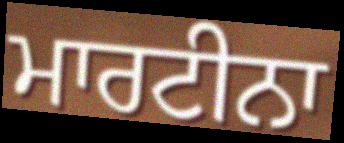
ਮਾਰਟੀਨਾ